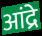
आंद्रे